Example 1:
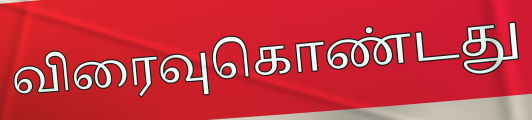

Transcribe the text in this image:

விரைவுகொண்டது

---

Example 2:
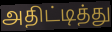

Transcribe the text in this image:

அதிட்டித்து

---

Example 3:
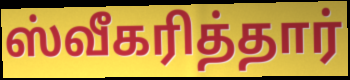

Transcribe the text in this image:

ஸ்வீகரித்தார்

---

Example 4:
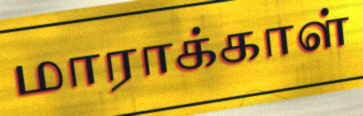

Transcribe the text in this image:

மாராக்காள்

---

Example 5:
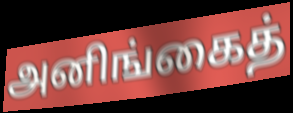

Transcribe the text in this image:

அனிங்கைத்